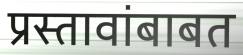
प्रस्तावांबाबत